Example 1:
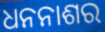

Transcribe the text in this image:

ଧନନାଶର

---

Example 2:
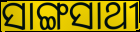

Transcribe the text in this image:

ସାଙ୍ଗସାଥୀ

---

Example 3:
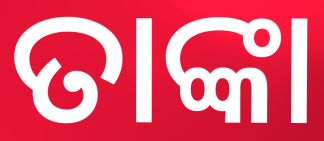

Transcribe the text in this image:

ତାଙ୍କା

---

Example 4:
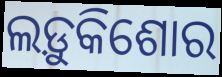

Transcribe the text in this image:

ଲଡ଼ୁକିଶୋର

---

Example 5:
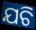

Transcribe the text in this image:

ଯଚି